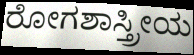
ರೋಗಶಾಸ್ತ್ರೀಯ